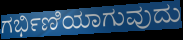
ಗರ್ಭಿಣಿಯಾಗುವುದು